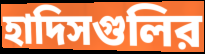
হাদিসগুলির